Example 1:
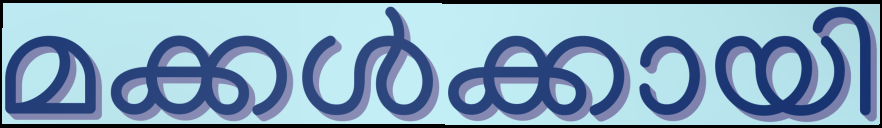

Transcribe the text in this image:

മക്കൾക്കായി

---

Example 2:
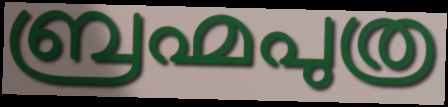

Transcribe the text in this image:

ബ്രഹ്മപുത്ര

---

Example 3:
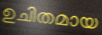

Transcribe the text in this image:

ഉചിതമായ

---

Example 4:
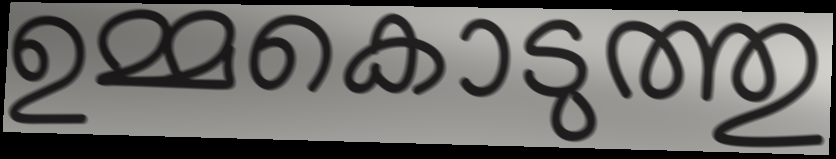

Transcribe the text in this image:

ഉമ്മകൊടുത്തു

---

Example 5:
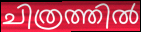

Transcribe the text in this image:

ചിത്രത്തിൽ